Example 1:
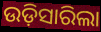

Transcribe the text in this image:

ଉଡ଼ିସାରିଲା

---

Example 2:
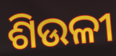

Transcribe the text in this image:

ଶିଉଳୀ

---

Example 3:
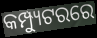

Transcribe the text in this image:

କମ୍ପ୍ୟୁଟରରେ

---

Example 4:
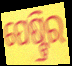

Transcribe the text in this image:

ପେଷ୍ଟ୍ରିର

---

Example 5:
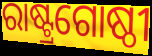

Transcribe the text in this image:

ରାଷ୍ଟ୍ରଗୋଷ୍ଠୀ